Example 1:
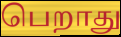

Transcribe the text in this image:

பெறாது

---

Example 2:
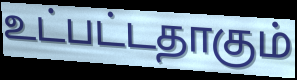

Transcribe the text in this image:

உட்பட்டதாகும்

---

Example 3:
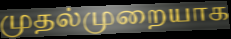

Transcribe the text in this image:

முதல்முறையாக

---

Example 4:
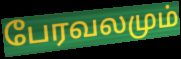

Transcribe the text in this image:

பேரவலமும்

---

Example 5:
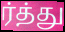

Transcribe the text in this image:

ர்த்து